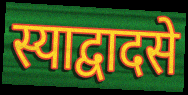
स्याद्वादसे